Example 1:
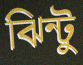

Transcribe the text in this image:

ঝিন্টু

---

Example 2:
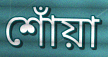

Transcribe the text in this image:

শোঁয়া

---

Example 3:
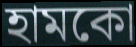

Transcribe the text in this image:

হামকো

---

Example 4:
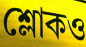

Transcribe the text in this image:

শ্লোকও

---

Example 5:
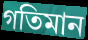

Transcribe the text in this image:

গতিমান